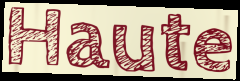
Haute